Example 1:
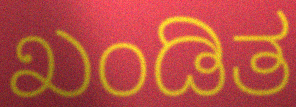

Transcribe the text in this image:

ಖಂಡಿತ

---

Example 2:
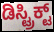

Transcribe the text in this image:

ಡಿಸ್ಟ್ರಿಕ್ಟ್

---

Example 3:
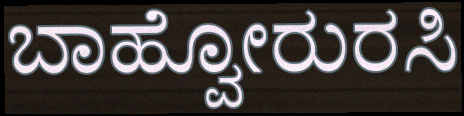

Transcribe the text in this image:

ಬಾಹ್ವೋರುರಸಿ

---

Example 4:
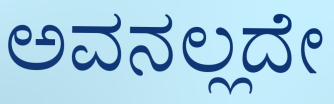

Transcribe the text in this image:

ಅವನಲ್ಲದೇ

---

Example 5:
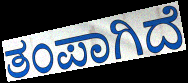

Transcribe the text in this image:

ತಂಪಾಗಿದೆ